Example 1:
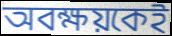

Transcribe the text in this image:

অবক্ষয়কেই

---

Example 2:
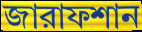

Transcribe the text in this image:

জারাফশান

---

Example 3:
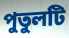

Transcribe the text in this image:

পুতুলটি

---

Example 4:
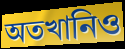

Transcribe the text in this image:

অতখানিও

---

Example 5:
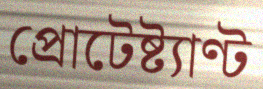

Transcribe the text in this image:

প্রোটেষ্ট্যাণ্ট